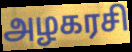
அழகரசி